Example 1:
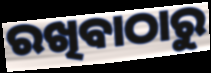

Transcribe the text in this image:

ରଖିବାଠାରୁ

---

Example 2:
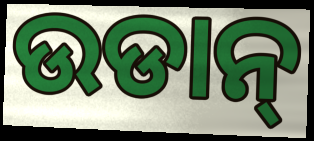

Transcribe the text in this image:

ଉଡାନ୍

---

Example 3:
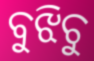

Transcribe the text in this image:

ବୁଝିଚୁ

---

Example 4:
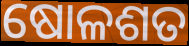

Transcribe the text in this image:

ଷୋଳଶତ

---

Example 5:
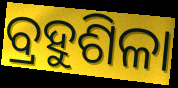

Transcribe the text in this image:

ବ୍ରହୁଶିଳା